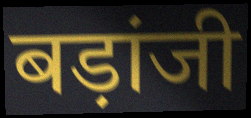
बड़ांजी